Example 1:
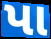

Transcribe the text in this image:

પા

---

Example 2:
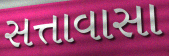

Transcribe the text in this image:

સત્તાવાસા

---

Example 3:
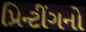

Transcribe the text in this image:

પ્રિન્ટીંગનો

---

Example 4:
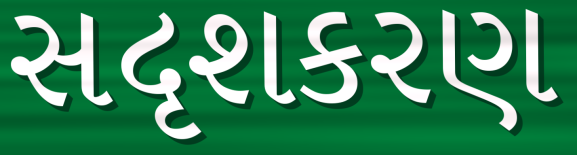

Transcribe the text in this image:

સદૃશકરણ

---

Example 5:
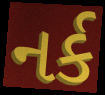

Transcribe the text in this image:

નર્ક